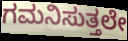
ಗಮನಿಸುತ್ತಲೇ